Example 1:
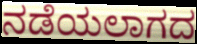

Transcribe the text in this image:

ನಡೆಯಲಾಗದ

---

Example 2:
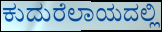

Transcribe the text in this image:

ಕುದುರೆಲಾಯದಲ್ಲಿ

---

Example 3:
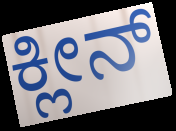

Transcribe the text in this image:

ಕ್ಲೀನ್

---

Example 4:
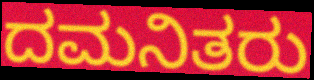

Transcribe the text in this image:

ದಮನಿತರು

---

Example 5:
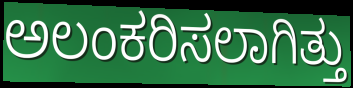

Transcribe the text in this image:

ಅಲಂಕರಿಸಲಾಗಿತ್ತು